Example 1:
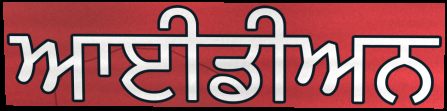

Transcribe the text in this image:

ਆਈਡੀਅਨ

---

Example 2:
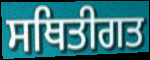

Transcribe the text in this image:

ਸਥਿਤੀਗਤ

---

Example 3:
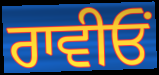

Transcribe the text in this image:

ਰਾਵੀਓਂ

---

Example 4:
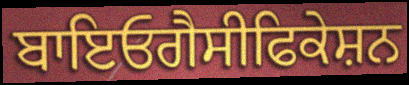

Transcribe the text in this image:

ਬਾਇਓਗੈਸੀਫਿਕੇਸ਼ਨ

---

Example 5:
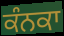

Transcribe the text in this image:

ਕੰਨਕਾ